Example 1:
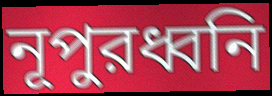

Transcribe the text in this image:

নূপুরধ্বনি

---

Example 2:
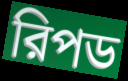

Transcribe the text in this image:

রিপড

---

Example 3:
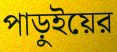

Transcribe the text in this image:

পাড়ুইয়ের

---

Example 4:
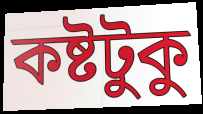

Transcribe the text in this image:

কষ্টটুকু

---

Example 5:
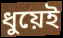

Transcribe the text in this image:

ধুয়েই